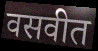
वसवीत